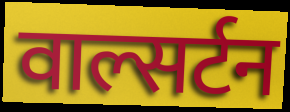
वाल्सर्टन